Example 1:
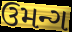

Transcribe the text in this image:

ઉમન્ગ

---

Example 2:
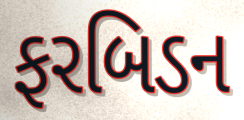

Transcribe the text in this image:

ફરબિડન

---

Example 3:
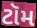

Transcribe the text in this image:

ટૉમ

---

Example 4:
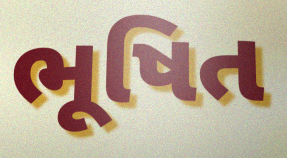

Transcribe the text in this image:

ભૂષિત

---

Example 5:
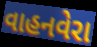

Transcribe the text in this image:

વાહનવેરા